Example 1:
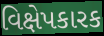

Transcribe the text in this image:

વિક્ષેપકારક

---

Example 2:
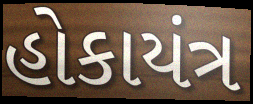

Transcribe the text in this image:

હોકાયંત્ર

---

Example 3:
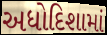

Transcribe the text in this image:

અધોદિશામાં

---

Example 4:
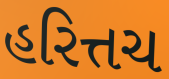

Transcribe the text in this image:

હરિત્તચ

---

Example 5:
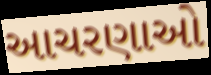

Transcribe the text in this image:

આચરણાઓ